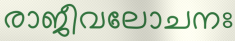
രാജീവലോചനഃ